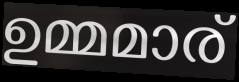
ഉമ്മമാര്